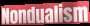
Nondualism